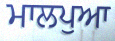
ਮਾਲਪੁਆ